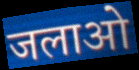
जलाओ